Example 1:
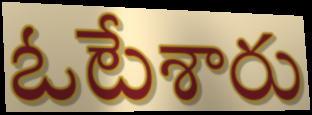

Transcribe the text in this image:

ఓటేశారు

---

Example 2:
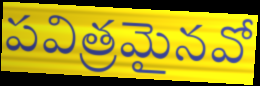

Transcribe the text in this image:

పవిత్రమైనవో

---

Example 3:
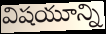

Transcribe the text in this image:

విషయూన్ని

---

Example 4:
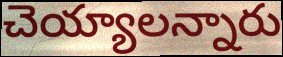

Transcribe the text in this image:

చెయ్యాలన్నారు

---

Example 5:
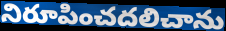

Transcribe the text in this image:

నిరూపించదలిచాను